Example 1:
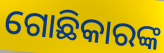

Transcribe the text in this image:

ଗୋଛିକାରଙ୍କ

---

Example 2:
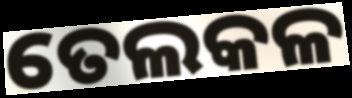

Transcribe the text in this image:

ତେଲକଳ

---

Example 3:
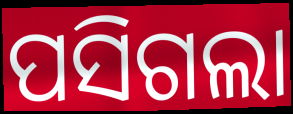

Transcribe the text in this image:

ପସିଗଲା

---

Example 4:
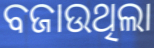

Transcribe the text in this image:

ବଜାଉଥିଲା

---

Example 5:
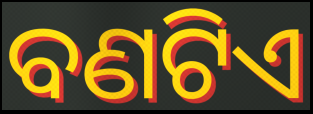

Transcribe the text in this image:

ବଣଟିଏ